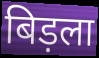
बिड़ला